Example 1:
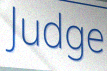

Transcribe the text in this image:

Judge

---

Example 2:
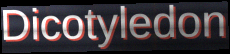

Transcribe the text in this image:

Dicotyledon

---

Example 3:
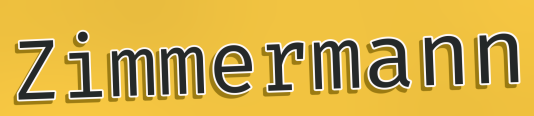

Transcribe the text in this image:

Zimmermann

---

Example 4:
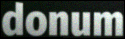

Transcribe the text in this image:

donum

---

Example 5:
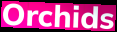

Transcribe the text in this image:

Orchids